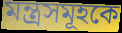
মন্ত্রসমূহকে